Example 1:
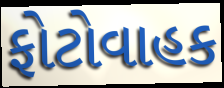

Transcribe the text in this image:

ફોટોવાહક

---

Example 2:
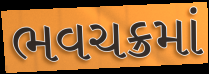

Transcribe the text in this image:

ભવચક્રમાં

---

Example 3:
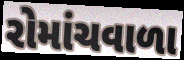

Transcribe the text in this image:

રોમાંચવાળા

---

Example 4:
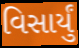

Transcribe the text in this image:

વિસાર્યું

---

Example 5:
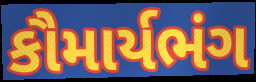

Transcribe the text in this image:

કૌમાર્યભંગ